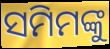
ସମିମଙ୍କୁ